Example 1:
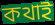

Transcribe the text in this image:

কথাই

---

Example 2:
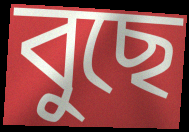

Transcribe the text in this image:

বুছে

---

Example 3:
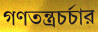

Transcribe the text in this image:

গণতন্ত্রচর্চার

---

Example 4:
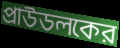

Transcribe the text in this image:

প্রাউডলকের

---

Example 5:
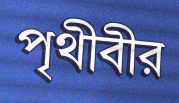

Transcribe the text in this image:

পৃথীবীর